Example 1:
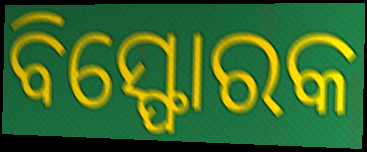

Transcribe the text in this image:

ବିସ୍ଫୋରକ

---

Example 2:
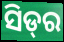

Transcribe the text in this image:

ସିଡ୍‌ର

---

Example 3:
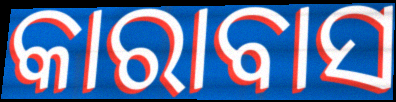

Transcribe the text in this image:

କାରାବାସ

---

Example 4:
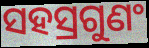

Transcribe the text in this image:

ସହସ୍ରଗୁଣଂ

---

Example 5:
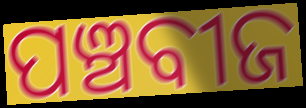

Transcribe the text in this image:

ପଞ୍ଚବୀଜ